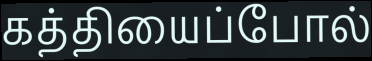
கத்தியைப்போல்